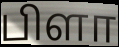
பிளா